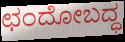
ಛಂದೋಬದ್ಧ